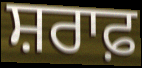
ਸ਼ਰਾਫ਼